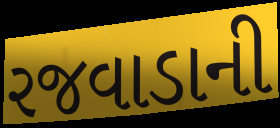
રજવાડાની